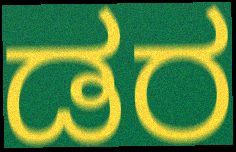
ಡರ